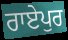
ਰਾਏਪੁਰ